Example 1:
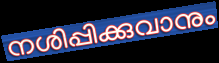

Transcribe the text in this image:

നശിപ്പിക്കുവാനും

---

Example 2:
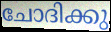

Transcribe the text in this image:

ചോദിക്കു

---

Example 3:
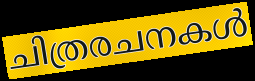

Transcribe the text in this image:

ചിത്രരചനകൾ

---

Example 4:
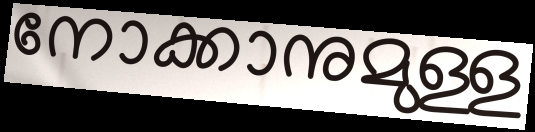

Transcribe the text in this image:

നോക്കാനുമുള്ള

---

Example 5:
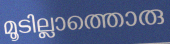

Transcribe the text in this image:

മൂടില്ലാത്തൊരു